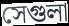
সেগুলা